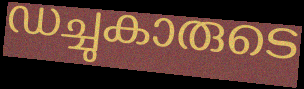
ഡച്ചുകാരുടെ